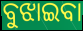
ବୁଝାଇବା